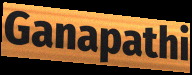
Ganapathi